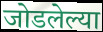
जोडलेल्या